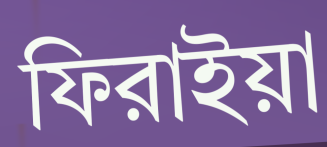
ফিরাইয়া